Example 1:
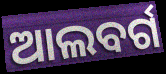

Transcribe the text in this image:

ଆଲବର୍ଗ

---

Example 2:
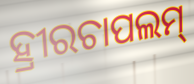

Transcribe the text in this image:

ହ୍ରୀରଚାପଲମ୍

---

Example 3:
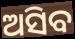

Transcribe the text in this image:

ଅସିବ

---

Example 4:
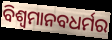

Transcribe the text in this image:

ବିଶ୍ବମାନବଧର୍ମର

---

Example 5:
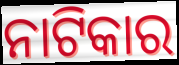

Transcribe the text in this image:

ନାଟିକାର